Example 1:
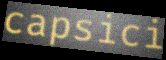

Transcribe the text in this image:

capsici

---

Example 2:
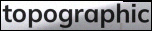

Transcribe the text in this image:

topographic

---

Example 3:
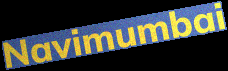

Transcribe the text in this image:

Navimumbai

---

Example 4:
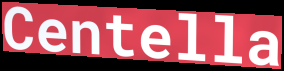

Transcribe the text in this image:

Centella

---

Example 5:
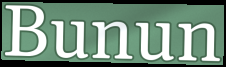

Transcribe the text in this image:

Bunun